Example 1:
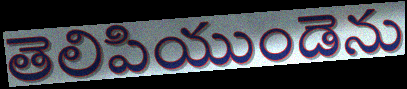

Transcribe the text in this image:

తెలిపియుండెను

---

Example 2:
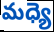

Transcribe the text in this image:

మధ్యె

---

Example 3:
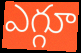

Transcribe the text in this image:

ఎగ్గూ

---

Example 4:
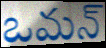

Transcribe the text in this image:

ఒమన్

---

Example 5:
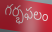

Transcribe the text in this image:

గర్భఫలం